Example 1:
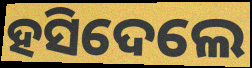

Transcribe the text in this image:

ହସିଦେଲେ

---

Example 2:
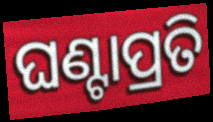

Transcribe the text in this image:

ଘଣ୍ଟାପ୍ରତି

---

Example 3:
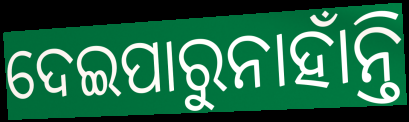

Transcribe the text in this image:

ଦେଇପାରୁନାହାଁନ୍ତି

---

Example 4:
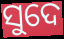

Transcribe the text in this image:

ସୁଦେ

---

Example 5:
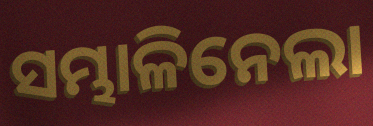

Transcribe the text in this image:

ସମ୍ଭାଳିନେଲା